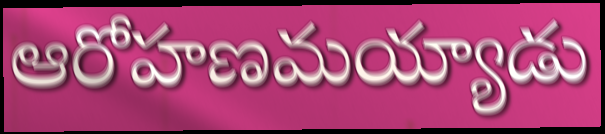
ఆరోహణమయ్యాడు